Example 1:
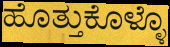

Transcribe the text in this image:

ಹೊತ್ತುಕೊಳ್ಳೊ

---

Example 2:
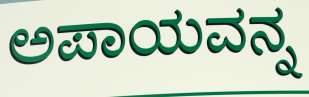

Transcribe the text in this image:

ಅಪಾಯವನ್ನ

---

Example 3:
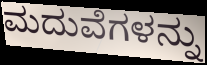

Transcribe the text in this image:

ಮದುವೆಗಳನ್ನು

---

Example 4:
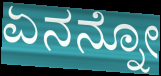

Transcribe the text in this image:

ಏನನ್ನೋ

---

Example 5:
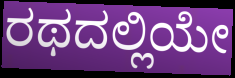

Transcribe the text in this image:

ರಥದಲ್ಲಿಯೇ